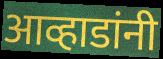
आव्हाडांनी